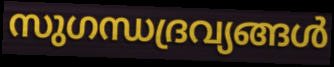
സുഗന്ധദ്രവ്യങ്ങൾ